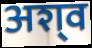
अश्व